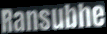
Ransubhe